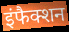
इंफैक्शन